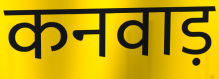
कनवाड़